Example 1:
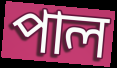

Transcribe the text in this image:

পাল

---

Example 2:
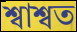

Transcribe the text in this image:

শ্বাশ্বত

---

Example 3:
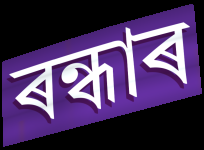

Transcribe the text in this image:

ৰন্ধাৰ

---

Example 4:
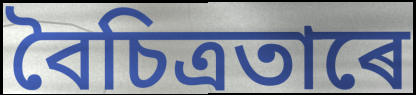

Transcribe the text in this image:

বৈচিত্ৰতাৰে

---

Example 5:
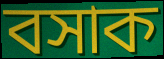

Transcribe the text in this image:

বসাক